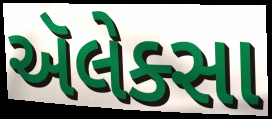
ઍલેક્સા